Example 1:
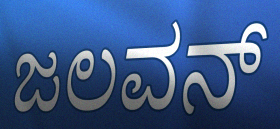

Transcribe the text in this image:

ಜಲವನ್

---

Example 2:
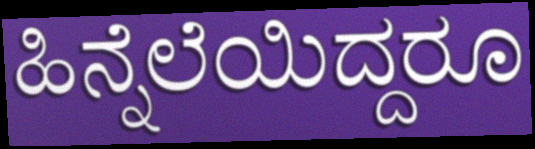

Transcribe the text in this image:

ಹಿನ್ನೆಲೆಯಿದ್ದರೂ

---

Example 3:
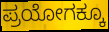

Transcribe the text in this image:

ಪ್ರಯೋಗಕ್ಕೂ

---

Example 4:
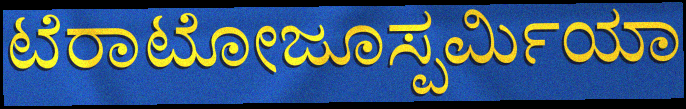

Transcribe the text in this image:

ಟೆರಾಟೋಜೂಸ್ಪರ್ಮಿಯಾ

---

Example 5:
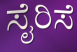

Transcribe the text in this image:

ಸೈರಿಸೆ